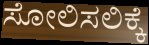
ಸೋಲಿಸಲಿಕ್ಕೆ